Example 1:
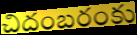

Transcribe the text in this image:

చిదంబరంకు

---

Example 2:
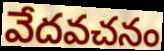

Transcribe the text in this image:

వేదవచనం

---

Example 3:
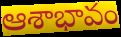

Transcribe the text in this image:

ఆశాభావం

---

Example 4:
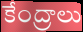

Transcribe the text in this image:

కేంద్రాలు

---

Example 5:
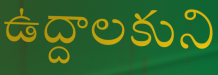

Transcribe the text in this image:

ఉద్దాలకుని